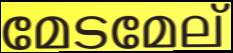
മേടമേല്